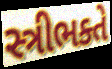
સ્ત્રીભક્તે